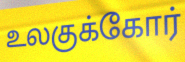
உலகுக்கோர்